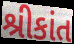
શ્રીકાંત